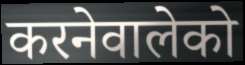
करनेवालेको